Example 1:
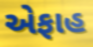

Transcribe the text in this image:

એફાહ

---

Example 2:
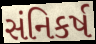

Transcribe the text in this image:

સંનિકર્ષ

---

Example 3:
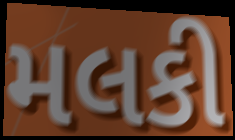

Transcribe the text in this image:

મલકી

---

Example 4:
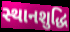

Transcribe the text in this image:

સ્થાનશુદ્ધિ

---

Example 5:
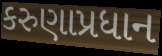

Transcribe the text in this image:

કરુણાપ્રધાન